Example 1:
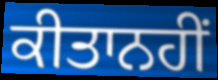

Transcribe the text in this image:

ਕੀਤਾਨਹੀਂ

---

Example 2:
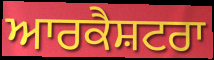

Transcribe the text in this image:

ਆਰਕੈਸ਼ਟਰਾ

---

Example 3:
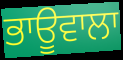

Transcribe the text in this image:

ਭਾਊਵਾਲਾ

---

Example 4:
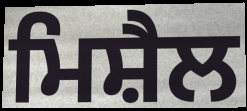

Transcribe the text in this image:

ਮਿਸ਼ੈਲ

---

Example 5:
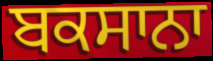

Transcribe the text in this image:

ਬਕਸਾਨਾ